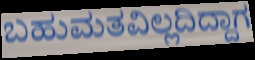
ಬಹುಮತವಿಲ್ಲದಿದ್ದಾಗ